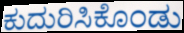
ಕುದುರಿಸಿಕೊಂಡು